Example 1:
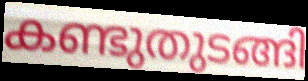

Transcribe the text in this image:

കണ്ടുതുടങ്ങി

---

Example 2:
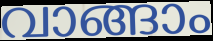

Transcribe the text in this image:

വാങ്ങാം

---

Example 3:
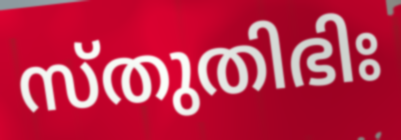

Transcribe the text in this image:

സ്തുതിഭിഃ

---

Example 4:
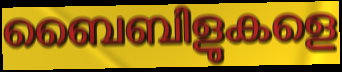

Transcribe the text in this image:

ബൈബിളുകളെ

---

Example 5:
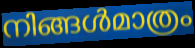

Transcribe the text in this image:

നിങ്ങൾമാത്രം